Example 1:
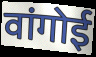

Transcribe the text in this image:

वांगोई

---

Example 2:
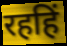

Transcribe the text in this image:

रहहिं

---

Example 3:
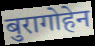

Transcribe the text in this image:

बुरागोहेन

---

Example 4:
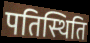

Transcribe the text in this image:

पतिस्थिति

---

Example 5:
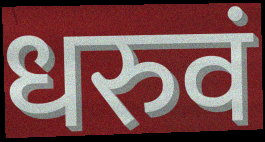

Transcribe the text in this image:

धरुवं